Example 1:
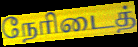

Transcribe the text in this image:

நேரிடைத்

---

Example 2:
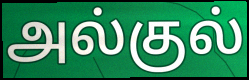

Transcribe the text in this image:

அல்குல்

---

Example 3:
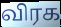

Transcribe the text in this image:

விரக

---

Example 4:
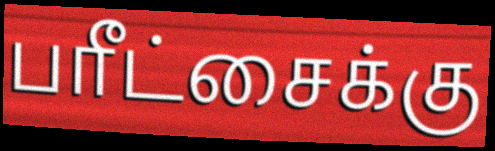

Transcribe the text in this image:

பரீட்சைக்கு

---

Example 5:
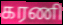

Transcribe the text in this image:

கரணி